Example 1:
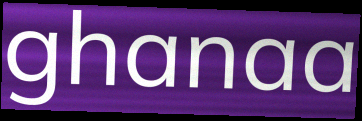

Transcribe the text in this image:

ghanaa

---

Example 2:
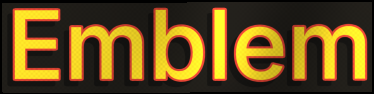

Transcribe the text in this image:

Emblem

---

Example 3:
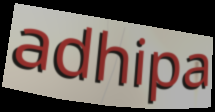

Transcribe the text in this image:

adhipa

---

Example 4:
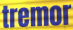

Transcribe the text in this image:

tremor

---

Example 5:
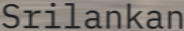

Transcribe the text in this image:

Srilankan